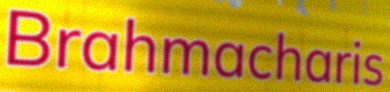
Brahmacharis